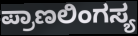
ಪ್ರಾಣಲಿಂಗಸ್ಯ